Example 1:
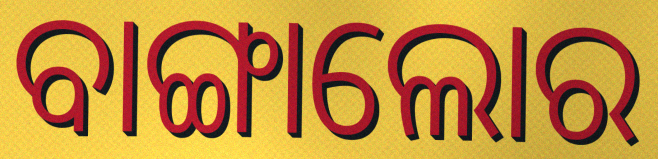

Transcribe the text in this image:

ବାଙ୍ଗାଲୋର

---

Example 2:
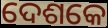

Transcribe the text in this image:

ଦେଶକେ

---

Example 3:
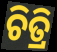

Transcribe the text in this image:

ଚିତ୍ରି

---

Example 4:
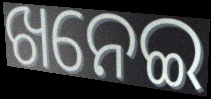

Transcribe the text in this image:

ଖନେଇ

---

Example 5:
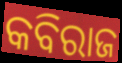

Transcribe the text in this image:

କବିରାଜ